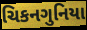
ચિકનગુનિયા